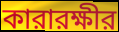
কারারক্ষীর